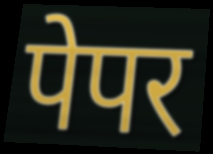
पेपर